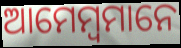
ଆମେମ୍ବମାନେ